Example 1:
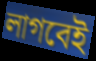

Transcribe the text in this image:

লাগবেই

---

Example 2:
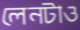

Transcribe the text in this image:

লেনটাও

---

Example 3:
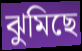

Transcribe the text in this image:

ঝুমিছে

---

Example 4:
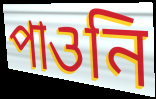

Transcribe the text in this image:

পাওনি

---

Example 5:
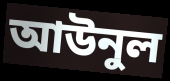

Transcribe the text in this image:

আউনুল